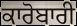
ਕਾਰੋਬਾਰੀ